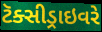
ટૅક્સીડ્રાઇવરે